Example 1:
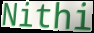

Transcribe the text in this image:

Nithi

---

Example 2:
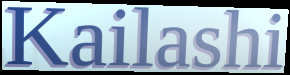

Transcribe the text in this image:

Kailashi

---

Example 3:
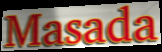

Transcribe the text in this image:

Masada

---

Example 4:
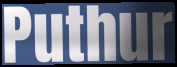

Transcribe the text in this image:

Puthur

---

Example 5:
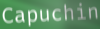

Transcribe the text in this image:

Capuchin